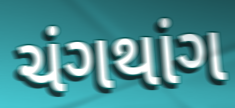
ચંગથાંગ